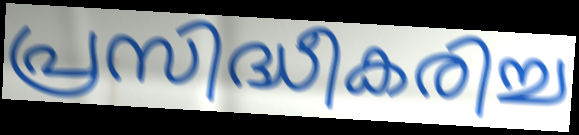
പ്രസിദ്ധീകരിച്ച